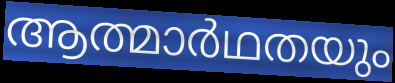
ആത്മാർഥതയും